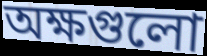
অক্ষগুলো